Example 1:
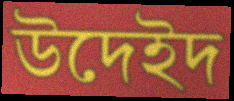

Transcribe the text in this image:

উদেইদ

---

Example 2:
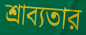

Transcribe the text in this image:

শ্রাব্যতার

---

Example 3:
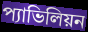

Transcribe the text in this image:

প্যাভিলিয়ন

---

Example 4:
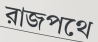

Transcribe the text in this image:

রাজপথে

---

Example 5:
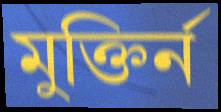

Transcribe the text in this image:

মুক্তির্ন